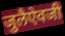
जुलैऐवजी